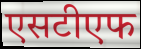
एसटीएफ